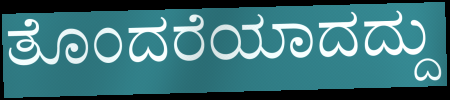
ತೊಂದರೆಯಾದದ್ದು